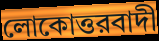
লোকোত্তরবাদী